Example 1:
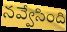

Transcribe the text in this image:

నవ్వేసింది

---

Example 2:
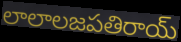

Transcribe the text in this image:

లాలాలజపతిరాయ్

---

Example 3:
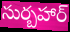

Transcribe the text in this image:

సుర్బహార్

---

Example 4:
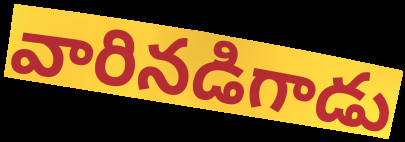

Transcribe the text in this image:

వారినడిగాడు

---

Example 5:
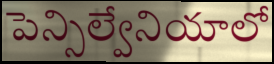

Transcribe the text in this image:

పెన్సిల్వేనియాలో